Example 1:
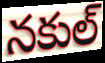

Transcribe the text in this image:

నకుల్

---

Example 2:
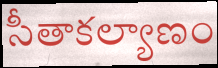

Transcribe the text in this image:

సీతాకల్యాణం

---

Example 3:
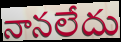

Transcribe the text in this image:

నానలేదు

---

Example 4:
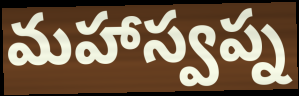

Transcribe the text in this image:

మహాస్వప్న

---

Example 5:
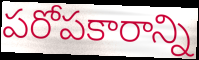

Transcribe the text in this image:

పరోపకారాన్ని